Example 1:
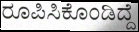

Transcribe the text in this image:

ರೂಪಿಸಿಕೊಂಡಿದ್ದೆ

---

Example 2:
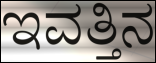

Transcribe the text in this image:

ಇವತ್ತಿನ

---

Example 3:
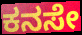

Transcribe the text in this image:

ಕನಸೇ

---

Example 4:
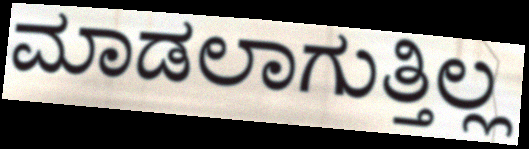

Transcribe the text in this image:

ಮಾಡಲಾಗುತ್ತಿಲ್ಲ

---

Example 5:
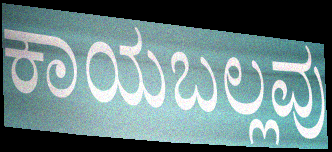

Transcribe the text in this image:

ಕಾಯಬಲ್ಲವು